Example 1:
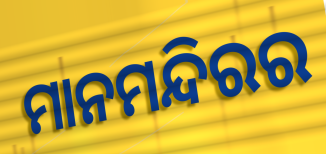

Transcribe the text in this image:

ମାନମନ୍ଦିରର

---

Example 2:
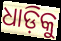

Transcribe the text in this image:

ଧାଡ଼ିକୁ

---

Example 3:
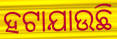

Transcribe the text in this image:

ହଟାଯାଉଛି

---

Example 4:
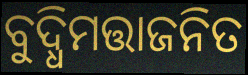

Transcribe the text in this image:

ବୁଦ୍ଧିମତ୍ତାଜନିତ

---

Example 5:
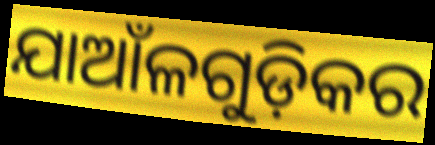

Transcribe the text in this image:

ଯାଆଁଳଗୁଡ଼ିକର